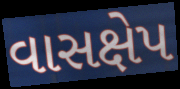
વાસક્ષેપ